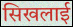
सिखलाई